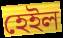
হেইল